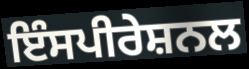
ਇੰਸਪੀਰੇਸ਼ਨਲ